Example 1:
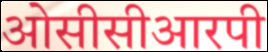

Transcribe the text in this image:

ओसीसीआरपी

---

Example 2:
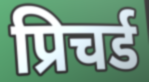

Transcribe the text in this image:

प्रिचर्ड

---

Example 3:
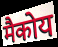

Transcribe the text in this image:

मैकोय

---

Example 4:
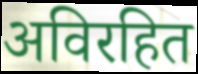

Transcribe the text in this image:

अविरहित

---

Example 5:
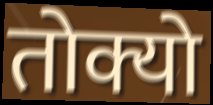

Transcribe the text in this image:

तोक्‍यो